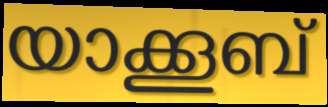
യാക്കൂബ്